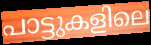
പാട്ടുകളിലെ